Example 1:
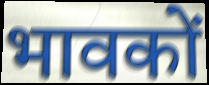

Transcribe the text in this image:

भावकों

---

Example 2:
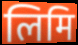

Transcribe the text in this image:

लिमि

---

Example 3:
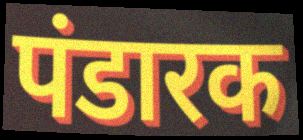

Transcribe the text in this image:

पंडारक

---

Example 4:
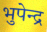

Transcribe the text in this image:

भुपेन्द्र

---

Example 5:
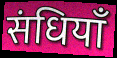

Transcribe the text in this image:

संधियाँ